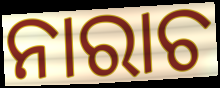
ନାରାଚ